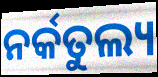
ନର୍କତୁଲ୍ୟ